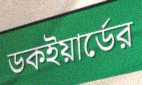
ডকইয়ার্ডের